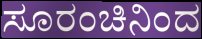
ಸೂರಂಚಿನಿಂದ